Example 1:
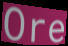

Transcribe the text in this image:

Ore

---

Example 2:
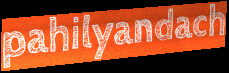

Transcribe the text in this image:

pahilyandach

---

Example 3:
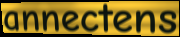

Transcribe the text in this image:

annectens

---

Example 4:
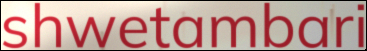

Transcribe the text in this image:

shwetambari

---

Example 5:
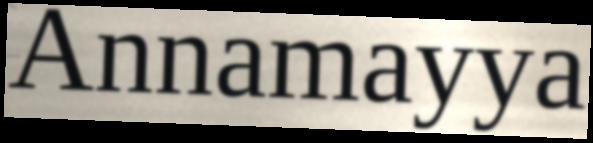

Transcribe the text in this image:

Annamayya